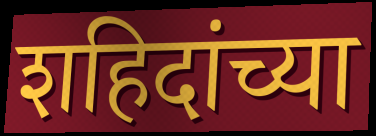
शहिदांच्या